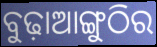
ବୁଢ଼ାଆଙ୍ଗୁଠିର